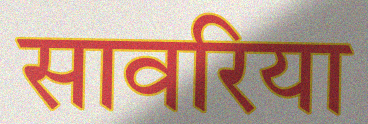
सावरिया